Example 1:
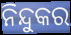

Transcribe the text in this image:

ନିନ୍ଦୁକର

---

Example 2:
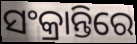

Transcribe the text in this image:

ସଂକ୍ରାନ୍ତିରେ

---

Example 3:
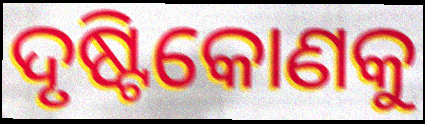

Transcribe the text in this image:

ଦୃଷ୍ଟିକୋଣକୁ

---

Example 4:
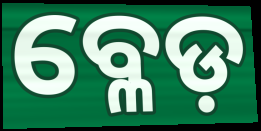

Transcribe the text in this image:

ବ୍ଳେଡ଼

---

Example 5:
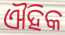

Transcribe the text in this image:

ଐହିକ